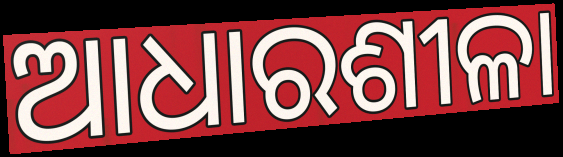
ଆଧାରଶୀଳା